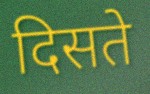
दिसते